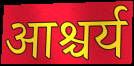
आश्चर्य